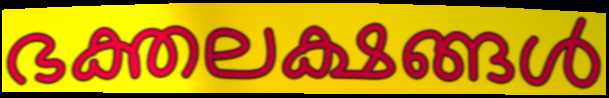
ഭക്തലക്ഷങ്ങൾ